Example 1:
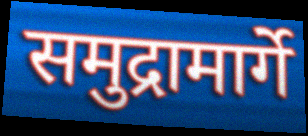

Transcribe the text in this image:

समुद्रामार्गे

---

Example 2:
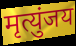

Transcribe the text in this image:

मृत्युंजय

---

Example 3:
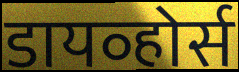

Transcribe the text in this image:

डायव्होर्स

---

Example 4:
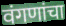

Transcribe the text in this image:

वंगणांचा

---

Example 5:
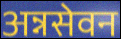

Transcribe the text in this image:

अन्नसेवन